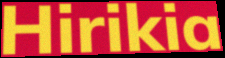
Hirikia